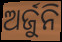
ଅର୍ଜୁନି